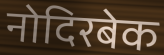
नोदिरबेक